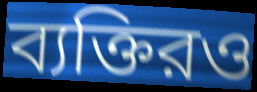
ব্যক্তিরও